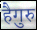
हैगुरु